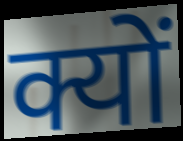
क्यों